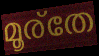
മൂര്തേ